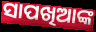
ସାପଖିଆଙ୍କ